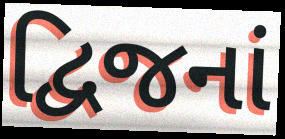
દ્વિજનાં